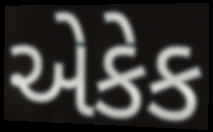
એકેક